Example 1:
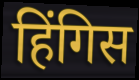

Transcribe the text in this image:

हिंगिस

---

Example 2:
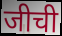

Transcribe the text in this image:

जीची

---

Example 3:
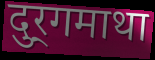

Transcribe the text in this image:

दुर्गमाथा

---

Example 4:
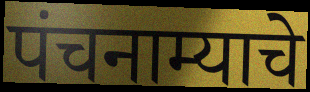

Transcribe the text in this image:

पंचनाम्याचे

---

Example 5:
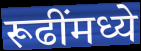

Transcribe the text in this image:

रूढींमध्ये